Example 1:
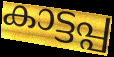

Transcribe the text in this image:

കാട്ടപ്പ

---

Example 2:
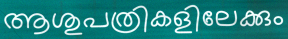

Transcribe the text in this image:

ആശുപത്രികളിലേക്കും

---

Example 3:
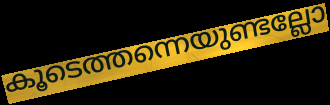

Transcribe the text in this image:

കൂടെത്തന്നെയുണ്ടല്ലോ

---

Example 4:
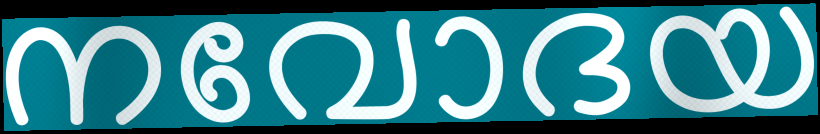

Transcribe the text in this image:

നവോദയ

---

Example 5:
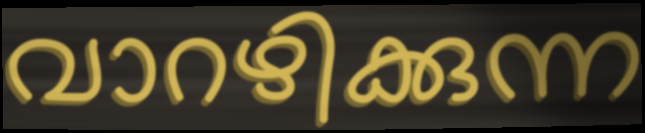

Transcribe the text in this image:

വാറഴിക്കുന്ന